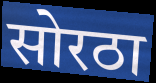
सोरठा